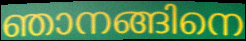
ഞാനങ്ങിനെ